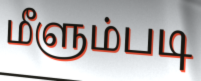
மீளும்படி